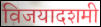
विजयादशमी